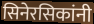
सिनेरसिकांनी